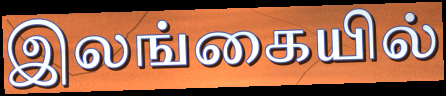
இலங்கையில்